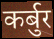
कर्बुर